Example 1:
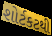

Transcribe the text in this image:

શોર્ટકટથી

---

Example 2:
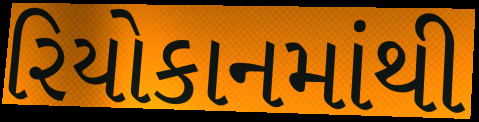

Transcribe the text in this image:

રિયોકાનમાંથી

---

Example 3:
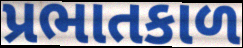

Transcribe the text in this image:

પ્રભાતકાળ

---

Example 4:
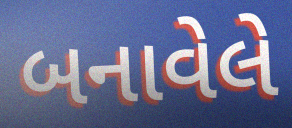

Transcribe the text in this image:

બનાવેલે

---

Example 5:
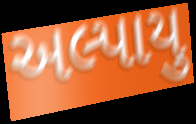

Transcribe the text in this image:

અલ્પાયુ